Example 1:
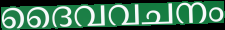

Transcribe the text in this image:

ദൈവവചനം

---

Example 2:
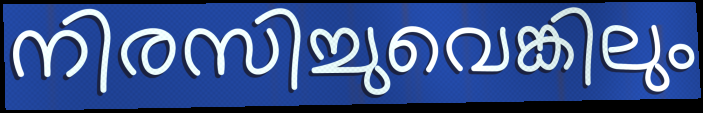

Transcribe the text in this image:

നിരസിച്ചുവെങ്കിലും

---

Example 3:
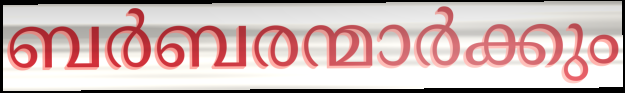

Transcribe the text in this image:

ബർബരന്മാർക്കും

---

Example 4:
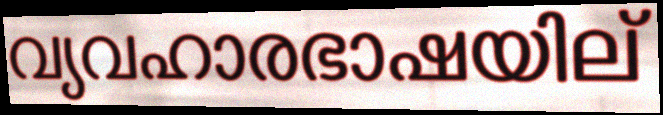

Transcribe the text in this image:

വ്യവഹാരഭാഷയില്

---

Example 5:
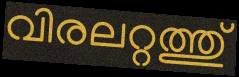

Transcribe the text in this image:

വിരലറ്റത്തു്